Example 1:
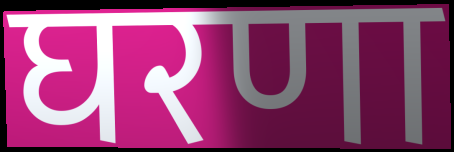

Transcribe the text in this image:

घरणा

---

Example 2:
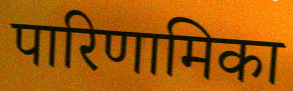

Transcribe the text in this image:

पारिणामिका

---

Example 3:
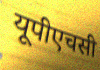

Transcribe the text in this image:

यूपीएचसी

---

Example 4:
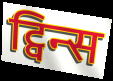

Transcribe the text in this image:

ट्विन्स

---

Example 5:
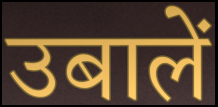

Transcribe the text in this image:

उबालें